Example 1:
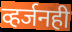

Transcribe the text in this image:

व्हर्जनही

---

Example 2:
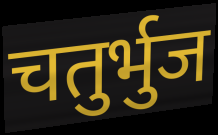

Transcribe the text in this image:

चतुर्भुज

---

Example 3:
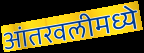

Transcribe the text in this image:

आंतरवलीमध्ये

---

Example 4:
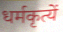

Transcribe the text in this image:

धर्मकृत्यें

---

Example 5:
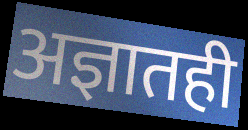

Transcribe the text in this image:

अज्ञातही